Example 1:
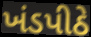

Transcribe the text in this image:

ખંડપીઠે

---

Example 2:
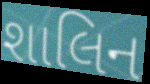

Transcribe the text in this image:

શાલિન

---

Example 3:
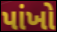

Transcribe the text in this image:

પાંખો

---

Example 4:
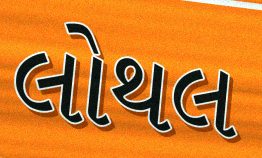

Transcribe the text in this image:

લોથલ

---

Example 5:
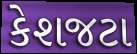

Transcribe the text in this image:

કેશજટા